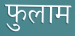
फुलाम